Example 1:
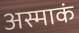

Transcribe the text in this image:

अस्माकं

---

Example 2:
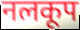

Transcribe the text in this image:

नलकूप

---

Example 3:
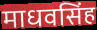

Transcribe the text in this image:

माधवसिंह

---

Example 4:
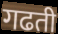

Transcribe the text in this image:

गढती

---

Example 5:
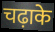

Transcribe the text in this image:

चढ़ाके